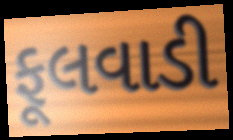
ફૂલવાડી